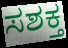
ಸಶಕ್ತ